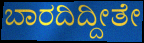
ಬಾರದಿದ್ದೀತೇ